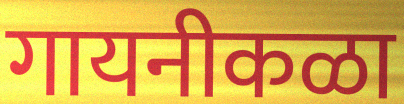
गायनीकळा